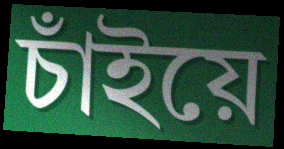
চাঁইয়ে